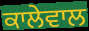
ਕਾਲੇਵਾਲ